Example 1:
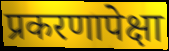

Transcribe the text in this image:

प्रकरणापेक्षा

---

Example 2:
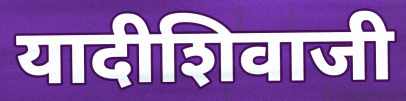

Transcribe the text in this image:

यादीशिवाजी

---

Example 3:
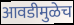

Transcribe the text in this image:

आवडीमुळेच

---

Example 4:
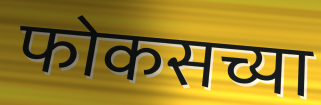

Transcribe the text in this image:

फोकसच्या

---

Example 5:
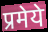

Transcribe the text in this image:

प्रमेये